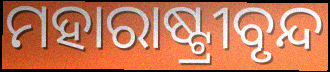
ମହାରାଷ୍ଟ୍ରୀବୃନ୍ଦ